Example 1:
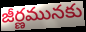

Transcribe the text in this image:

జీర్ణమునకు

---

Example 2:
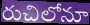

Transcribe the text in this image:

రుచిలోనూ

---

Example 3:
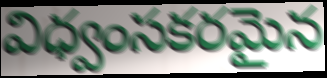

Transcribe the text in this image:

విధ్వంసకరమైన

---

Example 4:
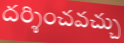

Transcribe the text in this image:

దర్శించవచ్చు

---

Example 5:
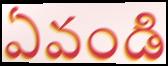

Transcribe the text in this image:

ఏవండి